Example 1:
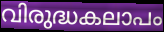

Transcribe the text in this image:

വിരുദ്ധകലാപം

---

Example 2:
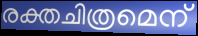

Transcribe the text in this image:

രക്തചിത്രമെന്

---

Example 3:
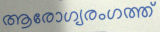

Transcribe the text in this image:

ആരോഗ്യരംഗത്ത്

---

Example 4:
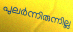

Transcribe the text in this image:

പുലർന്നിരുന്നില്ല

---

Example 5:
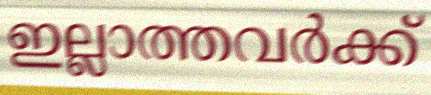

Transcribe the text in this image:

ഇല്ലാത്തവർക്ക്